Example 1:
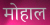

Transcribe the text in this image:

मोहाल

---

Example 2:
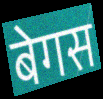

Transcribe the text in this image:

बेगस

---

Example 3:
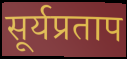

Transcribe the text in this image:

सूर्यप्रताप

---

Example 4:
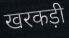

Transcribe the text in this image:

खरकड़ी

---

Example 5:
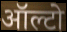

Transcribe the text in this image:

ऑल्टो